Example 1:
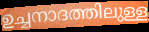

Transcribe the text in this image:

ഉച്ചനാദത്തിലുള്ള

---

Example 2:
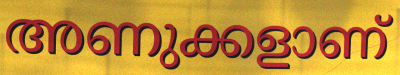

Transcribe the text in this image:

അണുക്കളാണ്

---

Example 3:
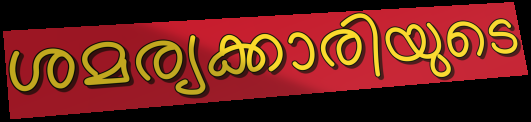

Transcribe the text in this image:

ശമര്യക്കാരിയുടെ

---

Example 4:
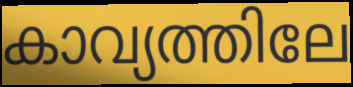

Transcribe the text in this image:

കാവ്യത്തിലേ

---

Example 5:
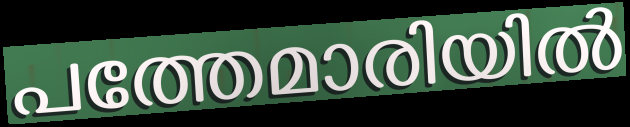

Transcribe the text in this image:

പത്തേമാരിയിൽ